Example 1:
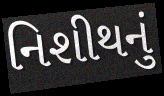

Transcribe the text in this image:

નિશીથનું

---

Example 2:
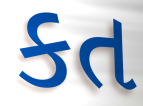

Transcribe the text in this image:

કત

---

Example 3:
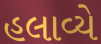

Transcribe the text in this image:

હલાવ્યે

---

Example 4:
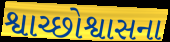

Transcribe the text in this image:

શ્વાચ્છોશ્વાસના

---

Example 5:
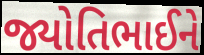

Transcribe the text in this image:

જ્યોતિભાઈને